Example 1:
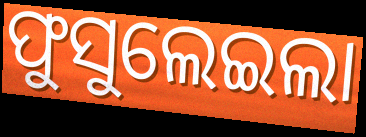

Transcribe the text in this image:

ଫୁସୁଲେଇଲା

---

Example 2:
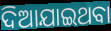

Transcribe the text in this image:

ଦିଆଯାଇଥବା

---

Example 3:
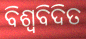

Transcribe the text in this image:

ବିଶ୍ବବିଦିତ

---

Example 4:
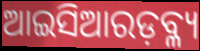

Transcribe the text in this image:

ଆଇସିଆରଡ଼ବ୍ଳ୍ୟ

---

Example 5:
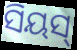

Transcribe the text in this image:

ସିୟସ୍